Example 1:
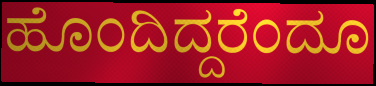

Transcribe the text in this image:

ಹೊಂದಿದ್ದರೆಂದೂ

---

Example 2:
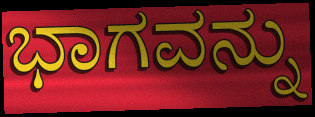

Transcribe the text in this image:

ಭಾಗವನ್ನು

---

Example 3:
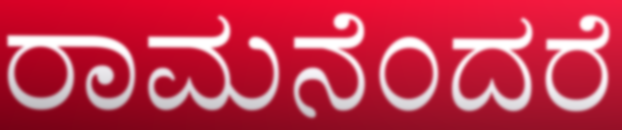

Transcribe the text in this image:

ರಾಮನೆಂದರೆ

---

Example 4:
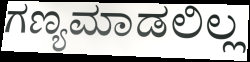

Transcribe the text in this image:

ಗಣ್ಯಮಾಡಲಿಲ್ಲ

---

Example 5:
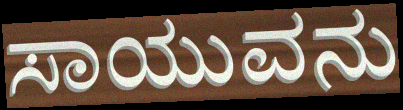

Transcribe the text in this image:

ಸಾಯುವನು